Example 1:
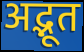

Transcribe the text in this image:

अद्भूत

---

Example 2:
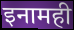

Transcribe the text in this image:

इनामही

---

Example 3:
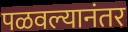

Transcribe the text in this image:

पळवल्यानंतर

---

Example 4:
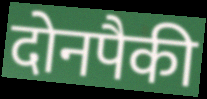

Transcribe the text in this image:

दोनपैकी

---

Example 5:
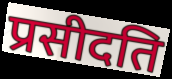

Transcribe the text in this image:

प्रसीदति